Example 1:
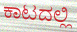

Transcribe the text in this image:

ಕಾಟದಲ್ಲಿ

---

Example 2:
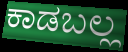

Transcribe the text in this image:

ಕಾಡಬಲ್ಲ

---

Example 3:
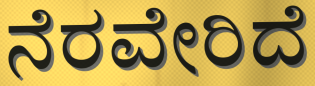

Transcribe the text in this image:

ನೆರವೇರಿದೆ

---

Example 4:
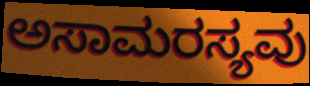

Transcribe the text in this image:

ಅಸಾಮರಸ್ಯವು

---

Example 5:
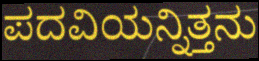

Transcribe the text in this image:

ಪದವಿಯನ್ನಿತ್ತನು